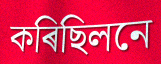
কৰিছিলনে